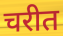
चरीत